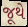
જૂથે